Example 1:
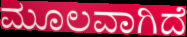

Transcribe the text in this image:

ಮೂಲವಾಗಿದೆ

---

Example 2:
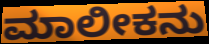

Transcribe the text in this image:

ಮಾಲೀಕನು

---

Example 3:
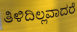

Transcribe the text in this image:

ತಿಳಿದಿಲ್ಲವಾದರೆ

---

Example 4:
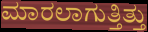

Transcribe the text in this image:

ಮಾರಲಾಗುತ್ತಿತ್ತು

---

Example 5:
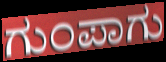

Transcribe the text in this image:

ಗುಂಪಾಗು